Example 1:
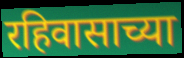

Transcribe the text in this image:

रहिवासाच्या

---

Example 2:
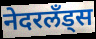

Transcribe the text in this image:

नेदरलँड्स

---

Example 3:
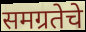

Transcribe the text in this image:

समग्रतेचे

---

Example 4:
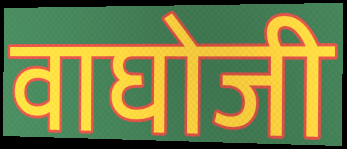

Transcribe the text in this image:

वाघोजी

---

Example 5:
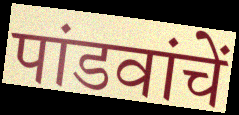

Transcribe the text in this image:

पांडवांचें